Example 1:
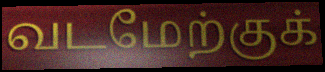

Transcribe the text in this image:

வடமேற்குக்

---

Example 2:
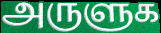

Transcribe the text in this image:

அருளுக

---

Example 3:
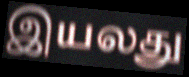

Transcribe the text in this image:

இயலது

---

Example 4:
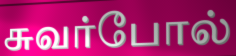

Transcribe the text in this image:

சுவர்போல்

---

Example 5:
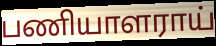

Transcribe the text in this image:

பணியாளராய்